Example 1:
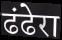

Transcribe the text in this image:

ढंढेरा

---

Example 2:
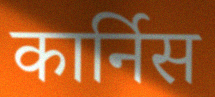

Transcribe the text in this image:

कार्निस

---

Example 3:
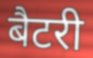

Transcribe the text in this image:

बैटरी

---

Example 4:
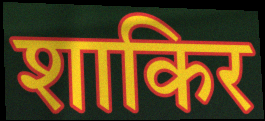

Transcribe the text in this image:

शाकिर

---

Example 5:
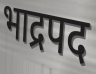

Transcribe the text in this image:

भाद्रपद